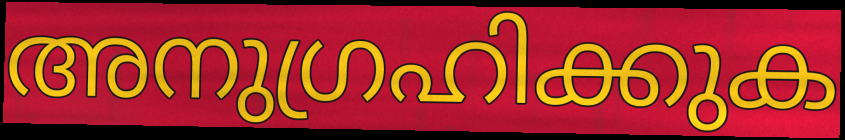
അനുഗ്രഹിക്കുക